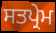
ਸਤਪ੍ਰੇਮ